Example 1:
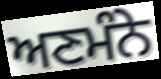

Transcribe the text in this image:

ਅਣਮੰਨੇ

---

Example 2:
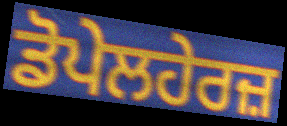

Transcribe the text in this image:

ਡੋਪੇਲਹੇਰਜ਼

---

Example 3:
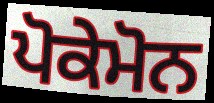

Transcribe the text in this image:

ਪੋਕੇਮੋਨ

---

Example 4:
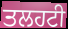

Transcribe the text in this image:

ਤਲਹਟੀ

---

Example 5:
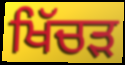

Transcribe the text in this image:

ਖਿੱਚੜ